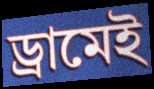
ড্রামেই